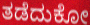
ತಡೆದುಕೋ